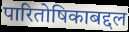
पारितोषिकाबद्दल